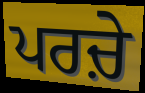
ਪਰਚ਼ੇ